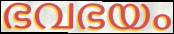
ഭവഭയം